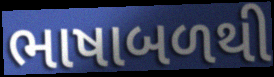
ભાષાબળથી